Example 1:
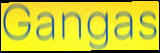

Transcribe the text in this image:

Gangas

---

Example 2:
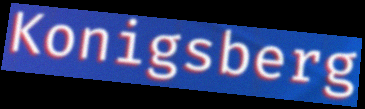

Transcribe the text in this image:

Konigsberg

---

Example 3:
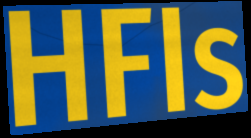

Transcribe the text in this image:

HFIs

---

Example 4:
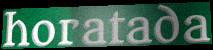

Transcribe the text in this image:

horatada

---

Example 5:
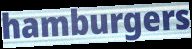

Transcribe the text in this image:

hamburgers